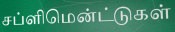
சப்ளிமென்ட்டுகள்